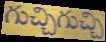
గుచ్చిగుచ్చి